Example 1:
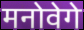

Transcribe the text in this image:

मनोवेगे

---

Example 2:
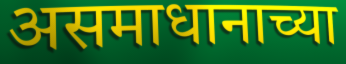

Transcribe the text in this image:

असमाधानाच्या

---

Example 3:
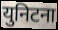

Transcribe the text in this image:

युनिटना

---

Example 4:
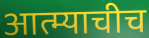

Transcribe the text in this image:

आत्म्याचीच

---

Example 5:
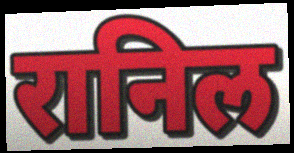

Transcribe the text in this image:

रानिल